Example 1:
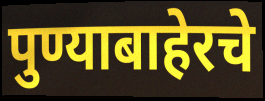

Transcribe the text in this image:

पुण्याबाहेरचे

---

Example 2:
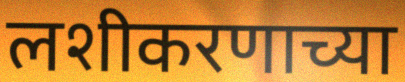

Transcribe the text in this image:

लशीकरणाच्या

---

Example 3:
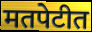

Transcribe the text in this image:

मतपेटीत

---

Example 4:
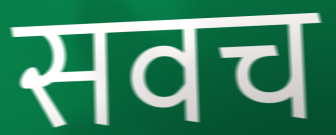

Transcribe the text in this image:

सवच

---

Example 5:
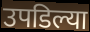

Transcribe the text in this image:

उपडिल्या